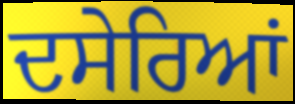
ਦਸੇਰਿਆਂ